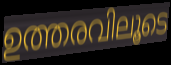
ഉത്തരവിലൂടെ